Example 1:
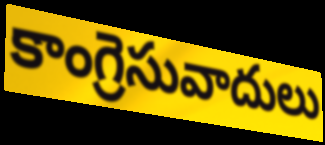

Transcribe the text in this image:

కాంగ్రెసువాదులు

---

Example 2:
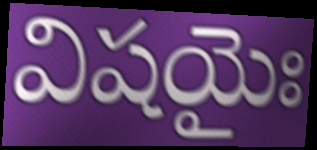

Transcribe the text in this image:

విషయైః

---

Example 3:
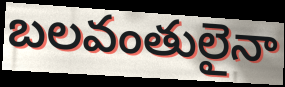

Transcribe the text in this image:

బలవంతులైనా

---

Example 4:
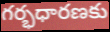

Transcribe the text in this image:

గర్భధారణకు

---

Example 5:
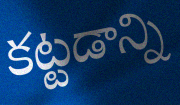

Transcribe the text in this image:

కట్టడాన్ని